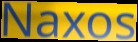
Naxos